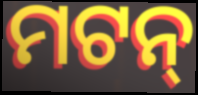
ମଟନ୍